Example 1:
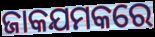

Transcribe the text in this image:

ଜାକଯମକରେ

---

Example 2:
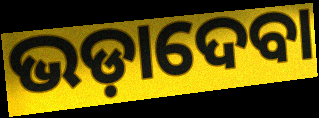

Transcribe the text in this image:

ଭଡ଼ାଦେବା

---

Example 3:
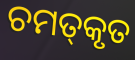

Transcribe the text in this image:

ଚମତ୍‌କୃତ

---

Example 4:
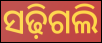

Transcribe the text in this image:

ସଢ଼ିଗଲି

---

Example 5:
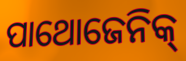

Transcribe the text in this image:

ପାଥୋଜେନିକ୍